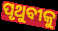
ପୃଥୁବୀକୁ